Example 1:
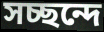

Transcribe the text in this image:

সচ্ছন্দে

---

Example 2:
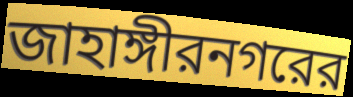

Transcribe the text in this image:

জাহাঙ্গীরনগরের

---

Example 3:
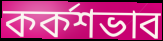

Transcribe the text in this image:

কর্কশভাব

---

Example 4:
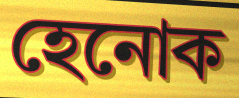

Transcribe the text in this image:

হেনোক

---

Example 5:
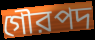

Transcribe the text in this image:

গৌরপদ